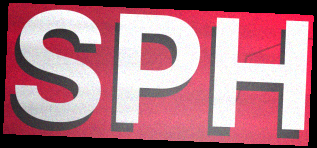
SPH